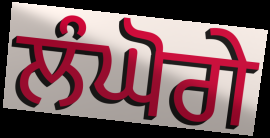
ਲੰਘੋਗੇ